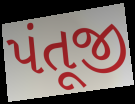
પંતૂજી